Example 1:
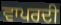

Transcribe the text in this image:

ਵਾਪਰਦੀ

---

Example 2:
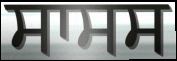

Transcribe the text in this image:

ਸਾਸਸ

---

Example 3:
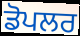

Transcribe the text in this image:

ਡੋਪਲਰ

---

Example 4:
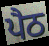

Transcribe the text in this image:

ਪੈਠ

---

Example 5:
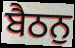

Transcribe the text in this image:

ਬੈਠਨੁ